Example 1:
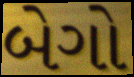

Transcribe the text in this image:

બેગો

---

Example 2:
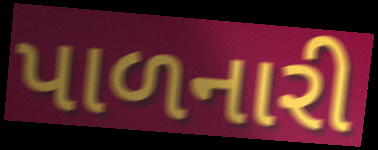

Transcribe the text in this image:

પાળનારી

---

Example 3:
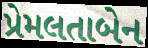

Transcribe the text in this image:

પ્રેમલતાબેન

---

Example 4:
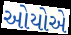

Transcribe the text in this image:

ઓયોએ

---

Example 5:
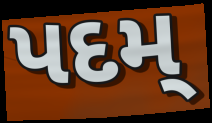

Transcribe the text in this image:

પદમ્